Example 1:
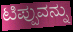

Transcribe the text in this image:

ಟಿಪ್ಪುವನ್ನು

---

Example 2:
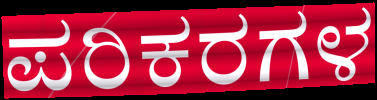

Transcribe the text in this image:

ಪರಿಕರಗಳ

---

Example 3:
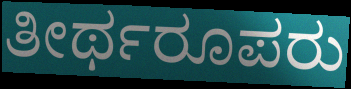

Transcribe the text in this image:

ತೀರ್ಥರೂಪರು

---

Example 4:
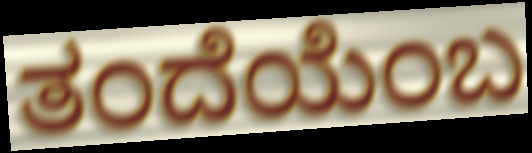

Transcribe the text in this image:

ತಂದೆಯೆಂಬ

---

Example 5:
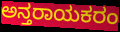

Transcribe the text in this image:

ಅನ್ತರಾಯಕರಂ